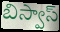
బిస్వాస్